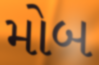
મોબ